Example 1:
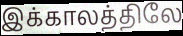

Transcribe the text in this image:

இக்காலத்திலே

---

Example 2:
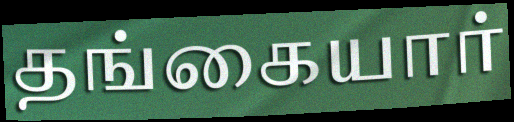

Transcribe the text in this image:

தங்கையார்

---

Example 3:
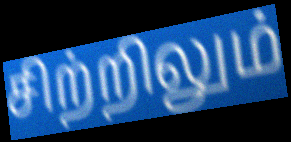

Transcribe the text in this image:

சிற்றிலும்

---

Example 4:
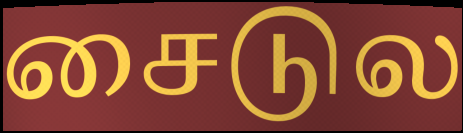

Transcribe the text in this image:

சைடுல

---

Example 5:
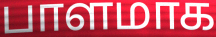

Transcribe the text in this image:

பாளமாக